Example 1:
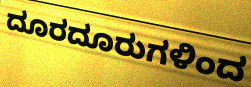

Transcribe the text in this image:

ದೂರದೂರುಗಳಿಂದ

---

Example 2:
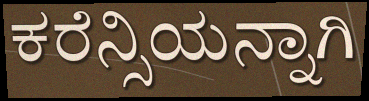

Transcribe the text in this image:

ಕರೆನ್ಸಿಯನ್ನಾಗಿ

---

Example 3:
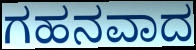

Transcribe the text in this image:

ಗಹನವಾದ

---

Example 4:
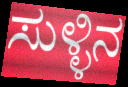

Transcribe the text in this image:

ಸುಳ್ಳಿನ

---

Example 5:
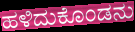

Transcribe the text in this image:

ಹಳಿದುಕೊಂಡನು